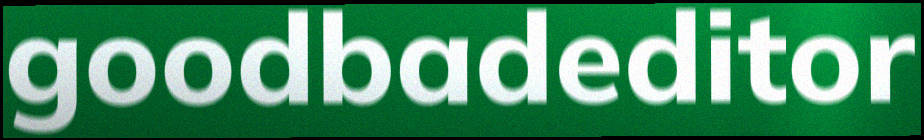
goodbadeditor